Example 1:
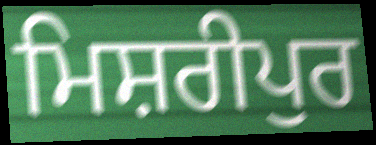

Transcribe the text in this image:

ਮਿਸ਼ਰੀਪੁਰ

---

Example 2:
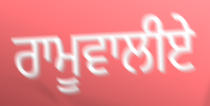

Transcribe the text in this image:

ਰਾਮੂਵਾਲੀਏ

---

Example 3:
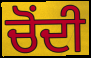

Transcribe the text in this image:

ਚੋੰਦੀ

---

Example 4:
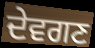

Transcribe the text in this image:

ਦੇਵਗਣ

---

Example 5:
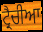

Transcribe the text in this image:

ਟ੍ਰੈਚੀਆ